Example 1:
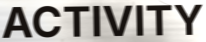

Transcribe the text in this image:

ACTIVITY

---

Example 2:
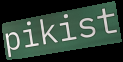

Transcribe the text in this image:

pikist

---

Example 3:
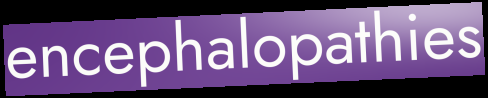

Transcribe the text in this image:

encephalopathies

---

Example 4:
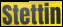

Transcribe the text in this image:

Stettin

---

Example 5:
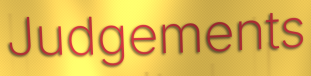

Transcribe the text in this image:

Judgements